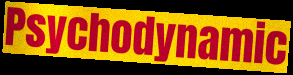
Psychodynamic